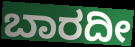
ಬಾರದೀ